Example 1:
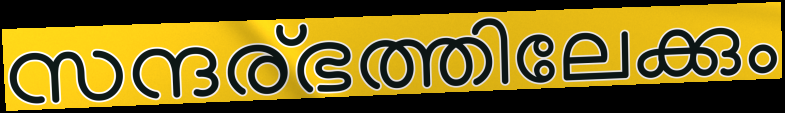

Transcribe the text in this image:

സന്ദര്ഭത്തിലേക്കും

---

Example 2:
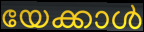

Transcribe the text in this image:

യേക്കാൾ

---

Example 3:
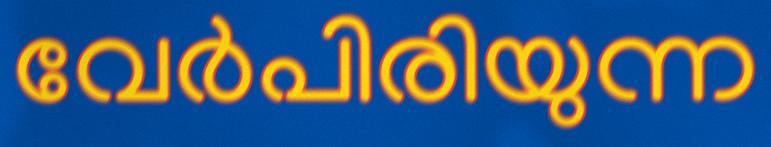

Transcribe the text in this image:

വേർപിരിയുന്ന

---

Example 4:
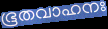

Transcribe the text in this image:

ഭൂതവാഹനഃ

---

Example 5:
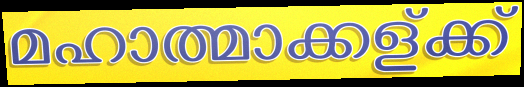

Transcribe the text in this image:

മഹാത്മാക്കള്ക്ക്